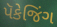
પૅકેજિંગ